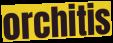
orchitis